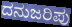
ದನುಜರಿಪು